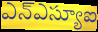
ఎన్ఎస్యూఐ